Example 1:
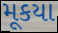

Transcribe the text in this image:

મૂકયા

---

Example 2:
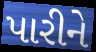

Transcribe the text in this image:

પારીને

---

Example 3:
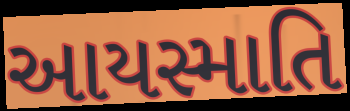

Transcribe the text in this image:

આયસ્માતિ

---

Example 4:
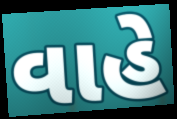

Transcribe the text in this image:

વાહે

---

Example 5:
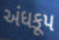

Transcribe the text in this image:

અંધકૂપ